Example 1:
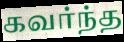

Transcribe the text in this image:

கவர்ந்த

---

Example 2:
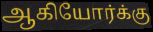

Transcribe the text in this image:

ஆகியோர்க்கு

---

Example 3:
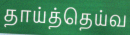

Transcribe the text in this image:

தாய்த்தெய்வ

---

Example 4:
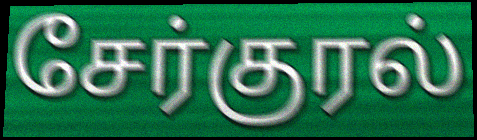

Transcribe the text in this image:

சேர்குரல்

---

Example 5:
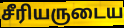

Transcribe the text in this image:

சீரியருடைய